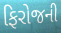
ફિરોજની